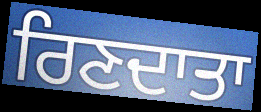
ਰਿਣਦਾਤਾ